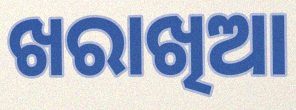
ଖରାଖିଆ